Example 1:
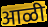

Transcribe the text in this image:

आळी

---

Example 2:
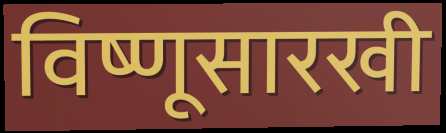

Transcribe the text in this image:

विष्णूसारखी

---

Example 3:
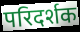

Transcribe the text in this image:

परिदर्शक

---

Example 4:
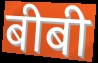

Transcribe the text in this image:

बीबी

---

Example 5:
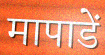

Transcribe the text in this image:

मापाडें